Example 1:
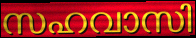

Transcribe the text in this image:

സഹവാസി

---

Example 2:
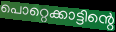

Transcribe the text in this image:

പൊറ്റെക്കാട്ടിന്റെ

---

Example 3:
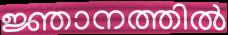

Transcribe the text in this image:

ജ്ഞാനത്തിൽ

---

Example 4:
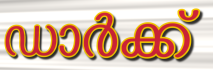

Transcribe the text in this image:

ഡാർക്ക്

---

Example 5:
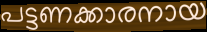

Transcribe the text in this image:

പട്ടണക്കാരനായ